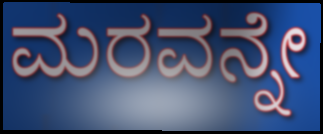
ಮರವನ್ನೇ